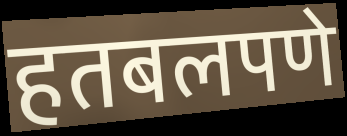
हतबलपणे